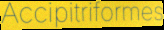
Accipitriformes